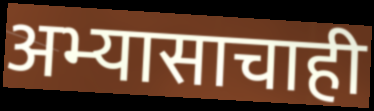
अभ्यासाचाही